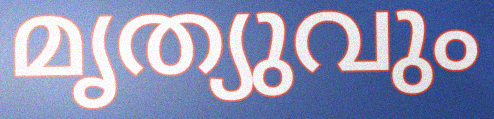
മൃത്യുവും